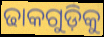
ଢାକଗୁଡ଼ିକୁ